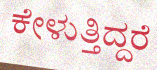
ಕೇಳುತ್ತಿದ್ದರೆ